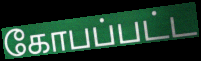
கோபப்பட்ட